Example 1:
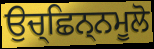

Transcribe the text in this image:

ਉਚ੍ਛਿਨ੍ਨਮੂਲੋ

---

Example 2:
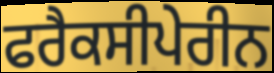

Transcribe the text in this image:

ਫਰੈਕਸੀਪੇਰੀਨ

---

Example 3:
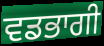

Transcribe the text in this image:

ਵਡਭਾਗੀ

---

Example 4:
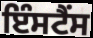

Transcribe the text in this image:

ਇੰਸਟੈਂਸ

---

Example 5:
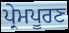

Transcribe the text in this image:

ਪ੍ਰੇਮਪੂਰਣ